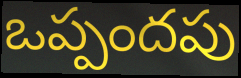
ఒప్పందపు